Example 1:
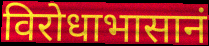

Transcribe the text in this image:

विरोधाभासानं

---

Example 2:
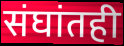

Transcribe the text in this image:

संघांतही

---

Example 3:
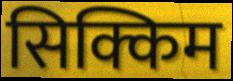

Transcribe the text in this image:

सिक्किम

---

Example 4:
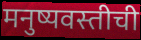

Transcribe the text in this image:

मनुष्यवस्तीची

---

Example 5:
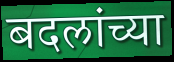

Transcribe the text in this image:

बदलांच्या